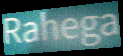
Rahega